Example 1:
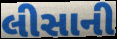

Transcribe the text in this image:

લીસાની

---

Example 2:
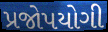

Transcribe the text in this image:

પ્રજોપયોગી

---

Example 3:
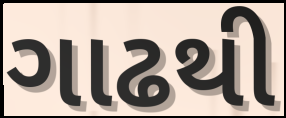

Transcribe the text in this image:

ગાઢથી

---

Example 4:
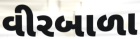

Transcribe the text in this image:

વીરબાળા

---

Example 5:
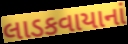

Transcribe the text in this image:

લાડકવાયાનાં